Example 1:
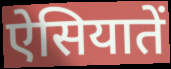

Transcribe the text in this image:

ऐसियातें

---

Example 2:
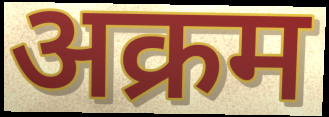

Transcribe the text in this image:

अक्रम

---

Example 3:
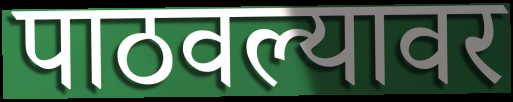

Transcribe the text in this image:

पाठवल्यावर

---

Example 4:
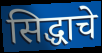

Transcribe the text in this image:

सिद्धाचे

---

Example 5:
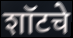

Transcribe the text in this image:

शॉटचे